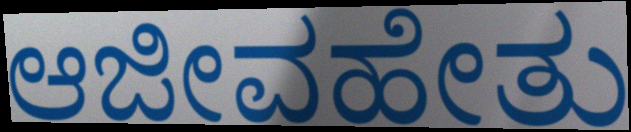
ಆಜೀವಹೇತು